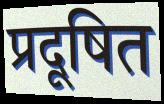
प्रदूषित